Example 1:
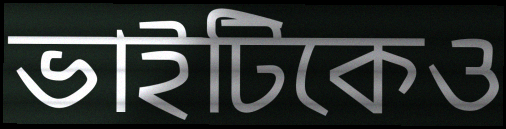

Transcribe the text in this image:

ভাইটিকেও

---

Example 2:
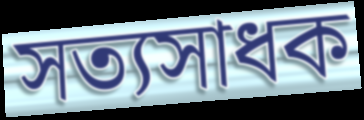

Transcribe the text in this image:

সত্যসাধক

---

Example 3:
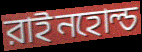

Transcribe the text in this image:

রাইনহোল্ড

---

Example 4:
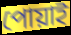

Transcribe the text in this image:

পোয়াই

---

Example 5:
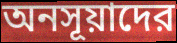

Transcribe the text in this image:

অনসূয়াদের